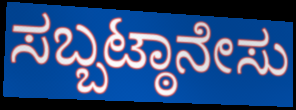
ಸಬ್ಬಟ್ಠಾನೇಸು